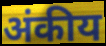
अंकीय